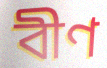
বীণ